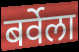
बर्वेला